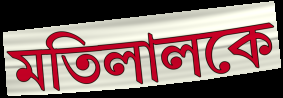
মতিলালকে